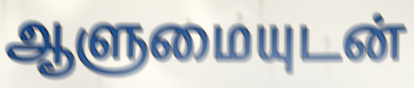
ஆளுமையுடன்